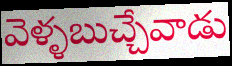
వెళ్ళబుచ్చేవాడు